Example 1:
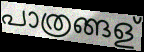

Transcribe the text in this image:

പാത്രങ്ങള്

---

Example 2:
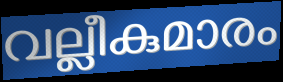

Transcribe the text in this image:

വല്ലീകുമാരം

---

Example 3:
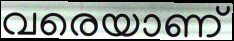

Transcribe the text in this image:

വരെയാണ്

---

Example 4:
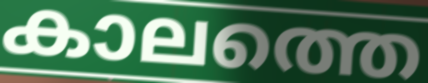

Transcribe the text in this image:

കാലത്തെ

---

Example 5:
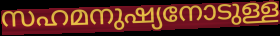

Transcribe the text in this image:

സഹമനുഷ്യനോടുള്ള